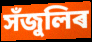
সঁজুলিৰ